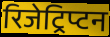
रिजेट्रिप्टन